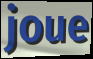
joue